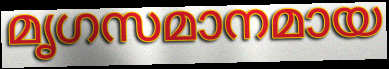
മൃഗസമാനമായ